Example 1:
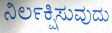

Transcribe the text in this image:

ನಿರ್ಲಕ್ಷಿಸುವುದು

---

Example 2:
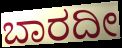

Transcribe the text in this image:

ಬಾರದೀ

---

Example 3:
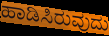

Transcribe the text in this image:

ಹಾಡಿಸಿರುವುದು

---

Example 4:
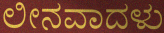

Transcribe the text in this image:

ಲೀನವಾದಳು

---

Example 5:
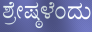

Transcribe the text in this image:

ಶ್ರೇಷ್ಠಳೆಂದು